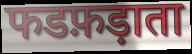
फडफ़ड़ाता